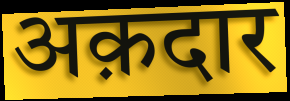
अक़दार